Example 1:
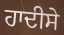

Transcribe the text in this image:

ਹਾਦੀਸੇ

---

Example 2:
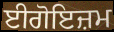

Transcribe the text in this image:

ਈਗੋਇਜ਼ਮ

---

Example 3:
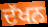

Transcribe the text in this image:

ਦੱਖਨ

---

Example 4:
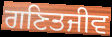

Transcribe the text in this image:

ਗਣਿਤਜੀਵ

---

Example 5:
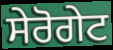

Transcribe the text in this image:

ਸੇਰੋਗੇਟ